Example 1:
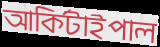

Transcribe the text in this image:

আৰ্কিটাইপাল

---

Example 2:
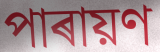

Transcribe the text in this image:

পাৰায়ণ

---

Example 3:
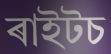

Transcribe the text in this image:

ৰাইটচ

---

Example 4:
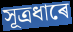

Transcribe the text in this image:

সূত্ৰধাৰে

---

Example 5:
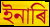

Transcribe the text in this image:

ইনাৰি